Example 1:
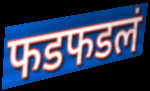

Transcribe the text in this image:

फडफडलं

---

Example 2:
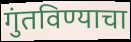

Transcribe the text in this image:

गुंतविण्याचा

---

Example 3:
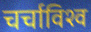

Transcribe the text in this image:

चर्चाविश्व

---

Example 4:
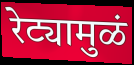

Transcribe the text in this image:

रेट्यामुळं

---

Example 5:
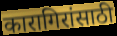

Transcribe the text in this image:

कारागिरांसाठी